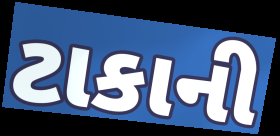
ટાકાની